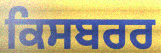
ਕਿਸਬਰਰ